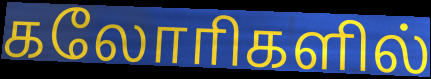
கலோரிகளில்